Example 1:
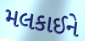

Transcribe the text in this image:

મલકાઈને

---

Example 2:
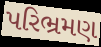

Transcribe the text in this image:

પરિભ્રમણ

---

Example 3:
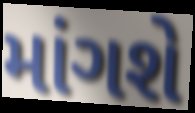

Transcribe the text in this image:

માંગશે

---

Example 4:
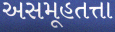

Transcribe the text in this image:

અસમૂહતત્તા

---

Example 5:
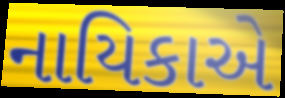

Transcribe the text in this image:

નાયિકાએ